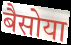
बैसोया